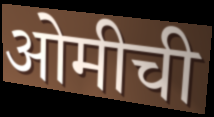
ओमीची